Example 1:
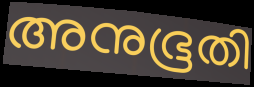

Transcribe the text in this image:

അനുഭൂതി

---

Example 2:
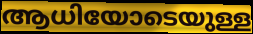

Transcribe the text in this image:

ആധിയോടെയുള്ള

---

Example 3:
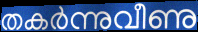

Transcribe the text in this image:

തകർന്നുവീണു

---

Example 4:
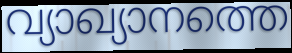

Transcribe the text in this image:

വ്യാഖ്യാനത്തെ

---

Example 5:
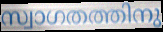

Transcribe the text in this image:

സ്വാഗതത്തിനു